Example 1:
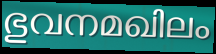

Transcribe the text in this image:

ഭുവനമഖിലം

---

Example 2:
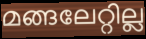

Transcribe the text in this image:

മങ്ങലേറ്റില്ല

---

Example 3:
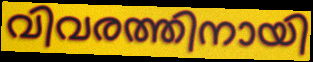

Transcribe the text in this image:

വിവരത്തിനായി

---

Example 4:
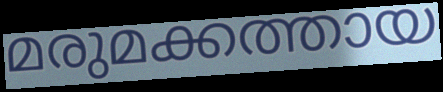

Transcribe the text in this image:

മരുമക്കത്തായ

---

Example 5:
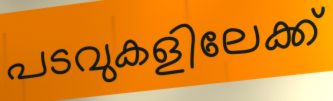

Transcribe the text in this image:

പടവുകളിലേക്ക്